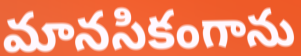
మానసికంగాను